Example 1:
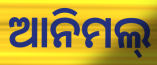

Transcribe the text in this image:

ଆନିମଲ୍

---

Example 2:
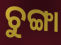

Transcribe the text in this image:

ଚୁଙ୍ଗା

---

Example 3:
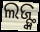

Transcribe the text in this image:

ଲଜ୍ଙ୍କ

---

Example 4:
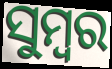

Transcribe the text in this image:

ସୁମ୍ବର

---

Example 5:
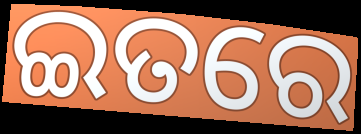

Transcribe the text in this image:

ଇତରେ